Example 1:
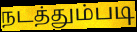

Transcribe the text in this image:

நடத்தும்படி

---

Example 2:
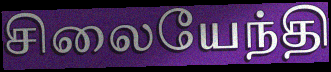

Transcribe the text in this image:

சிலையேந்தி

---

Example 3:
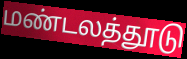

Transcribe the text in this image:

மண்டலத்தூடு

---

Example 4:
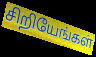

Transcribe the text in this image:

சிறியேங்கள்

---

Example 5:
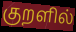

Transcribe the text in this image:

குறளில்